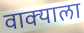
वाक्‍याला